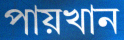
পায়খান